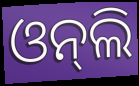
ଓନ୍‍ଲି